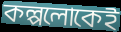
কল্পলোকেই